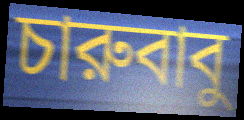
চারুবাবু